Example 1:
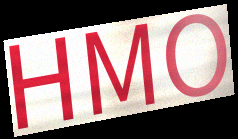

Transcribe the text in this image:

HMO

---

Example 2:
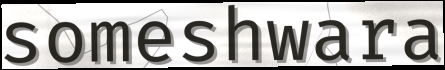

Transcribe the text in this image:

someshwara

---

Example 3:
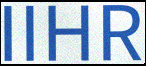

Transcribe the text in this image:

IIHR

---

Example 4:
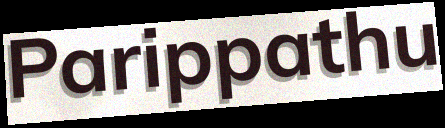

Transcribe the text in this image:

Parippathu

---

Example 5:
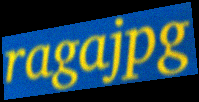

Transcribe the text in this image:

ragajpg